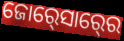
ଜୋର୍‍ସୋର୍‍ରେ